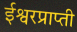
ईश्वरप्राप्ती